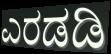
ಎರಡಡಿ